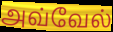
அவ்வேல்